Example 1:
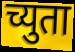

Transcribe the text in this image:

च्युता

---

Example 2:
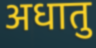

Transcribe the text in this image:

अधातु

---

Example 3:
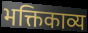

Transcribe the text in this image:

भक्तिकाव्य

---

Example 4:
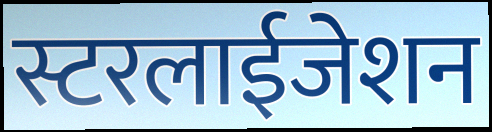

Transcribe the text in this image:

स्टरलाईजेशन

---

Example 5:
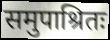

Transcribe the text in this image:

समुपाश्रितः